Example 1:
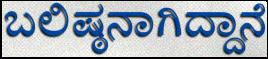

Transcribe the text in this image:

ಬಲಿಷ್ಠನಾಗಿದ್ದಾನೆ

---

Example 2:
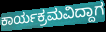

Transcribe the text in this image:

ಕಾರ್ಯಕ್ರಮವಿದ್ದಾಗ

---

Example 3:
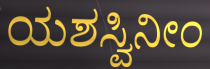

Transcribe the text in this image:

ಯಶಸ್ವಿನೀಂ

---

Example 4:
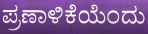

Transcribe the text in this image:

ಪ್ರಣಾಳಿಕೆಯೆಂದು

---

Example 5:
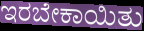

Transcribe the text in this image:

ಇರಬೇಕಾಯಿತು